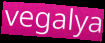
vegalya